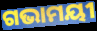
ଗଭାମୟୀ